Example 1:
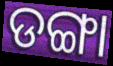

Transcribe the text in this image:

ଡଙ୍ଗା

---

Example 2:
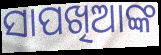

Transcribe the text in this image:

ସାପଖିଆଙ୍କ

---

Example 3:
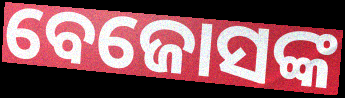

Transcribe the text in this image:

ବେଜୋସଙ୍କ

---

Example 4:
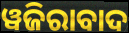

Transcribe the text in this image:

ୱଜିରାବାଦ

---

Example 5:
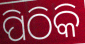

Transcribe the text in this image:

ପିଠିକି